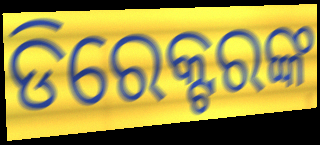
ଡିରେକ୍ଟରଙ୍କ